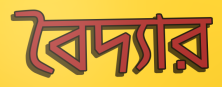
বৈদ্যার